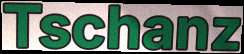
Tschanz